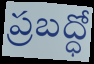
ప్రబద్ధో